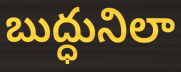
బుద్ధునిలా